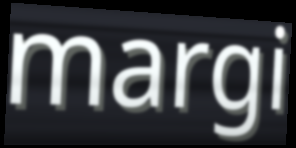
margi